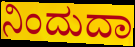
ನಿಂದುದಾ